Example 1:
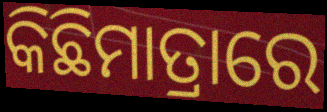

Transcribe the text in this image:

କିଛିମାତ୍ରାରେ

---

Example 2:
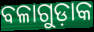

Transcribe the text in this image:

ବଳାଗୁଡ଼ାକ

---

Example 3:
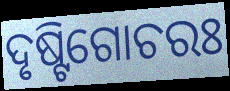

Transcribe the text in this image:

ଦୃଷ୍ଟିଗୋଚରଃ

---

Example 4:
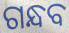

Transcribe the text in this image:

ଗନ୍ଧବ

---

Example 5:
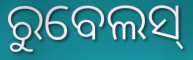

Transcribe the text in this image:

ରୁବେଲସ୍